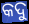
କଦୁ